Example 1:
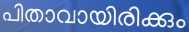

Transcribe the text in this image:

പിതാവായിരിക്കും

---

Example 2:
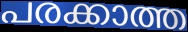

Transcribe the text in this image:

പരക്കാത്ത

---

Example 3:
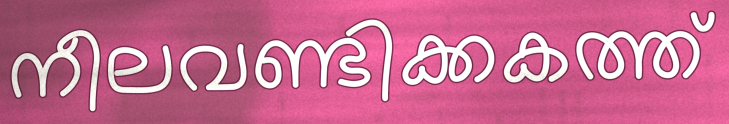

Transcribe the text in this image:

നീലവണ്ടിക്കകത്ത്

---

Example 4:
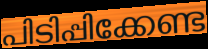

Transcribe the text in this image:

പിടിപ്പിക്കേണ്ട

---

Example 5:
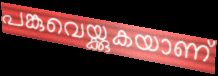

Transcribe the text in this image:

പങ്കുവെയ്ക്കുകയാണ്